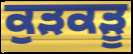
ਕੁੜਕੜੂ